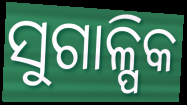
ସୁଗାଳ୍ପିକ